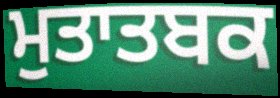
ਮੁਤਾਤਬਕ